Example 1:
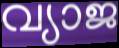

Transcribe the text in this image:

വ്യാജ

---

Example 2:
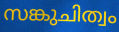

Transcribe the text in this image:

സങ്കുചിത്വം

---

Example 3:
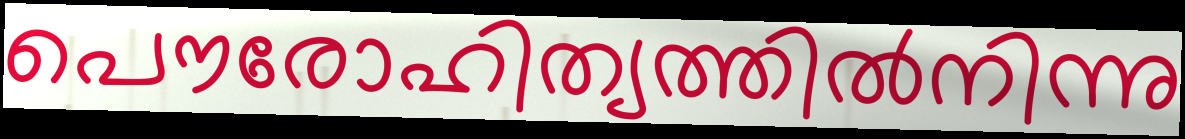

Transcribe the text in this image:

പൌരോഹിത്യത്തിൽനിന്നു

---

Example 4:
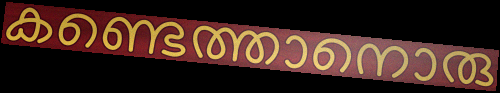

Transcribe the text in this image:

കണ്ടെത്താനൊരു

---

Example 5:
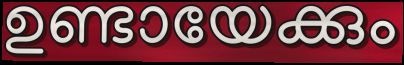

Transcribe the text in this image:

ഉണ്ടായേക്കും